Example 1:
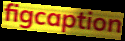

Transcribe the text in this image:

figcaption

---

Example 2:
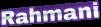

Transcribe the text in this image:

Rahmani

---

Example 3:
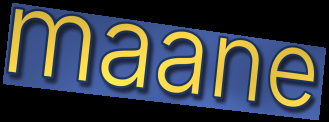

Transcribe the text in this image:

maane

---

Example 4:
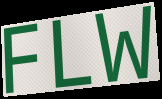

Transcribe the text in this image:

FLW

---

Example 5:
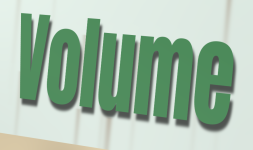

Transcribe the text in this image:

Volume